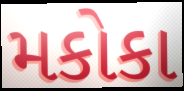
મકોકા